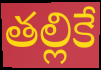
తల్లికే